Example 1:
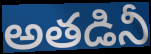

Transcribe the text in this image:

అతడినీ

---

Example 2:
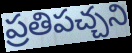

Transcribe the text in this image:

ప్రతిపచ్చని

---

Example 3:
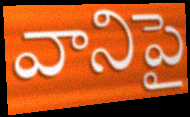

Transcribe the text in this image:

వానిపై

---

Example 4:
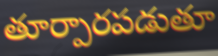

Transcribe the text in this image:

తూర్పారపడుతూ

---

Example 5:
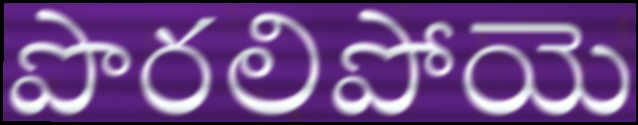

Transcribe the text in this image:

పొరలిపోయె